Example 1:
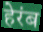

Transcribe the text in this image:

हेरंब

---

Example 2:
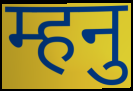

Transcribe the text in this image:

म्हनु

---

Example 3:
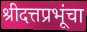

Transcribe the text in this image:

श्रीदत्तप्रभूंचा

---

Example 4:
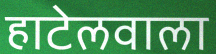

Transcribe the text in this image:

हाटेलवाला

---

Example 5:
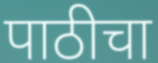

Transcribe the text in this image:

पाठीचा